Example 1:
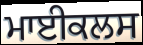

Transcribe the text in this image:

ਮਾਈਕਲਸ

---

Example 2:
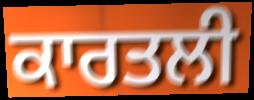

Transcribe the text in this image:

ਕਾਰਤਲੀ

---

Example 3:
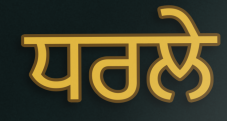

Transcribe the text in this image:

ਧਰਲੇ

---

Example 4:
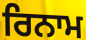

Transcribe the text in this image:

ਰਿਨਾਮ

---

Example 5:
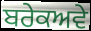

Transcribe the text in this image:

ਬਰੇਕਅਵੇ